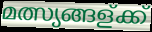
മത്സ്യങ്ങള്ക്ക്